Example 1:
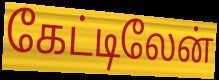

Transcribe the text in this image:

கேட்டிலேன்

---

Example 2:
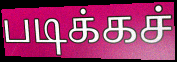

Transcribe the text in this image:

படிக்கச்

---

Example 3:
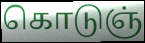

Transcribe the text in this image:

கொடுஞ்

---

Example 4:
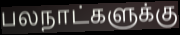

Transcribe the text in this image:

பலநாட்களுக்கு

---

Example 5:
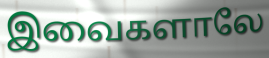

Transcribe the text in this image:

இவைகளாலே